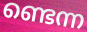
ണ്ടെന്ന